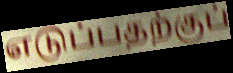
எடுப்பதற்குப்